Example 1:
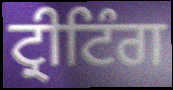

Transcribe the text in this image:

ਟ੍ਰੀਟਿੰਗ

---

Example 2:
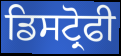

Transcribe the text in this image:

ਡਿਸਟ੍ਰੋਫੀ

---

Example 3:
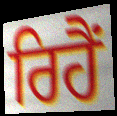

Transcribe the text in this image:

ਰਿਹੈਂ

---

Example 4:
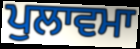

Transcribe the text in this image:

ਪੁਲਾਵਮਾ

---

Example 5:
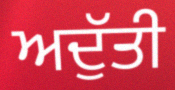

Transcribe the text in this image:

ਅਦੁੱਤੀ